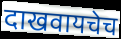
दाखवायचेच